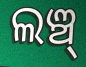
ଲଞ୍ଚ୍